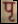
पृ